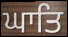
ਘਾਤਿ